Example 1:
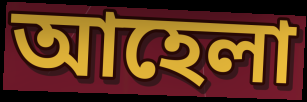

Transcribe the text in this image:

আহেলা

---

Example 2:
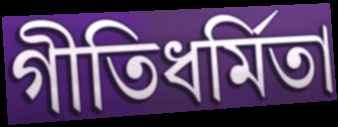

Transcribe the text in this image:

গীতিধর্মিতা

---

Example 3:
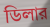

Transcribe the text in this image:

ডিলার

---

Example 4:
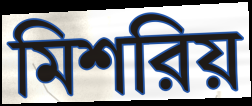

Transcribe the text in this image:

মিশরিয়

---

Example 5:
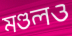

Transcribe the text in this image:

মণ্ডলও